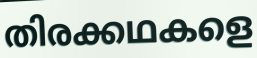
തിരക്കഥകളെ